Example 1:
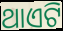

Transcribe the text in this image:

ଥାଏଟି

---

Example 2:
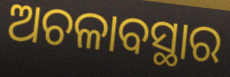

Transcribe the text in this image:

ଅଚଳାବସ୍ଥାର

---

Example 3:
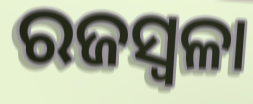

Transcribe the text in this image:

ରଜସ୍ବଳା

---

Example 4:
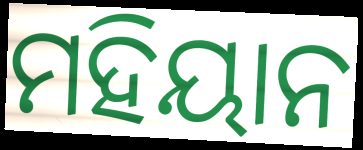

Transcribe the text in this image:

ମହିୟାନ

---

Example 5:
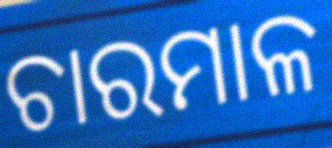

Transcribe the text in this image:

ଚାରମାଳ